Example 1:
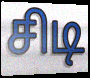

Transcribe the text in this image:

சிடி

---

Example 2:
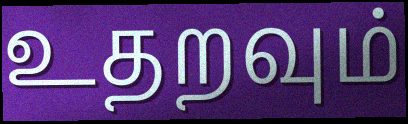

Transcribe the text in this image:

உதறவும்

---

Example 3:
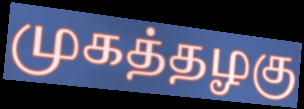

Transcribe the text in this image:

முகத்தழகு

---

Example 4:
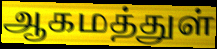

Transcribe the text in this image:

ஆகமத்துள்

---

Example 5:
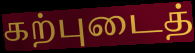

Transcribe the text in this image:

கற்புடைத்